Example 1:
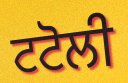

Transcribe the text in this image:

ਟਟੋਲੀ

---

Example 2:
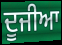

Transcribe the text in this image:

ਦੂਜੀਆ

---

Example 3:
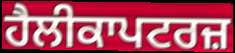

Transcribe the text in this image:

ਹੈਲੀਕਾਪਟਰਜ਼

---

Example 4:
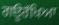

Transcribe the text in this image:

ਗਊਰੱਖਿਆ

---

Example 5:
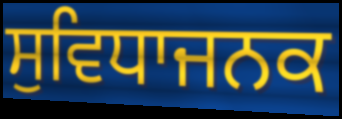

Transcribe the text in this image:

ਸੁਵਿਧਾਜਨਕ